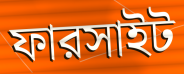
ফারসাইট